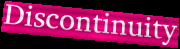
Discontinuity